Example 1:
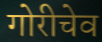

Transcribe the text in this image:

गोरीचेव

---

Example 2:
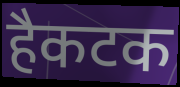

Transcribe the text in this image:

हैकटक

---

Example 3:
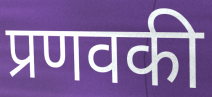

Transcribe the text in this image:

प्रणवकी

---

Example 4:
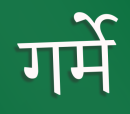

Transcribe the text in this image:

गर्मे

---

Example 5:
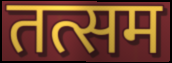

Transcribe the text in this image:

तत्सम